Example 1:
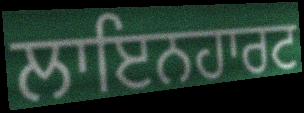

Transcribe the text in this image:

ਲਾਇਨਹਾਰਟ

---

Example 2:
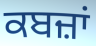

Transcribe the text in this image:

ਕਬਜ਼ਾਂ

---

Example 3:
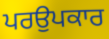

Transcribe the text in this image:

ਪਰਉਪਕਾਰ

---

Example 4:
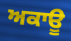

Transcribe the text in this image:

ਅਕਾਊ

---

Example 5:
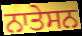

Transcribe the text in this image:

ਨਾਤੇਸਨ